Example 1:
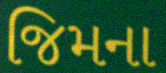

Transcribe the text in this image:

જિમના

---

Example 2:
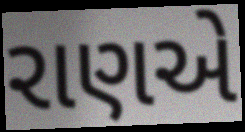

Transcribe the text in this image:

રાણએ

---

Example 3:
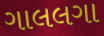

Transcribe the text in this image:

ગાલલગા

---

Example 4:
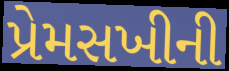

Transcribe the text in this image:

પ્રેમસખીની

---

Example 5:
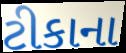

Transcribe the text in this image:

ટીકાના